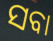
ସବା